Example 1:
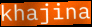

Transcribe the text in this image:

khajina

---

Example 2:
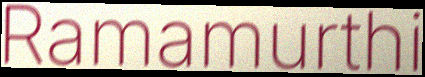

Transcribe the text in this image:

Ramamurthi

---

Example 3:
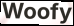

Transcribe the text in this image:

Woofy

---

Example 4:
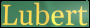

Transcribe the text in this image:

Lubert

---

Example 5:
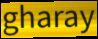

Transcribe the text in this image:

gharay